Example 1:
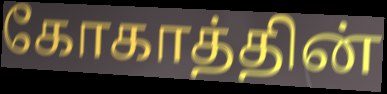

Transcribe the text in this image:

கோகாத்தின்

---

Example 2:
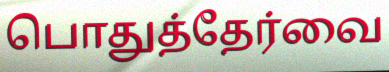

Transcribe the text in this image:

பொதுத்தேர்வை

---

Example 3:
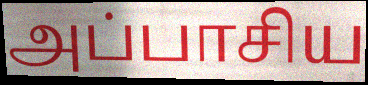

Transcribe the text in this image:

அப்பாசிய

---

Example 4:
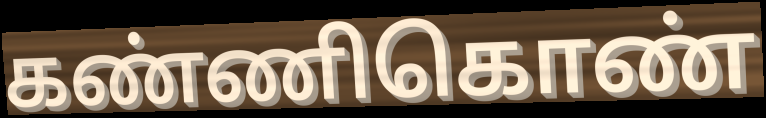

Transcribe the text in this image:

கண்ணிகொண்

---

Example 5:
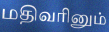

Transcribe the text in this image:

மதிவரினும்